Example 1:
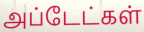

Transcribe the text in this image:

அப்டேட்கள்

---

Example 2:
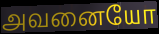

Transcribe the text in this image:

அவனையோ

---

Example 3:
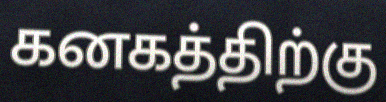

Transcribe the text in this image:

கனகத்திற்கு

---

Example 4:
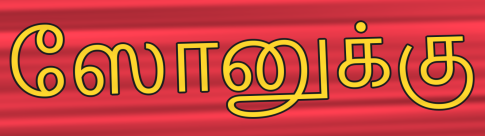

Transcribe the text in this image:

ஸோனுக்கு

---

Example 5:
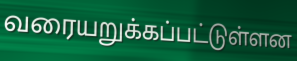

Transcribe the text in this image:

வரையறுக்கப்பட்டுள்ளன